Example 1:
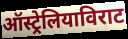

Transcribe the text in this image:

ऑस्ट्रेलियाविराट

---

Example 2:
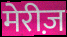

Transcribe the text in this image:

मेरीज़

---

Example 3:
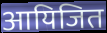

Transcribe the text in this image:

आयिजित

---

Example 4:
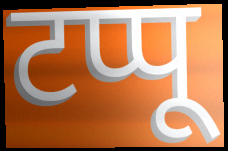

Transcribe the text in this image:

टप्पू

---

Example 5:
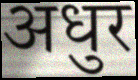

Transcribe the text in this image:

अधुर